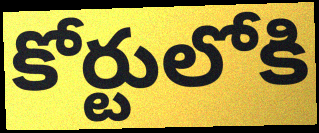
కోర్టులోకి